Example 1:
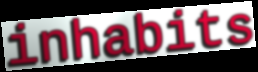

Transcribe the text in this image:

inhabits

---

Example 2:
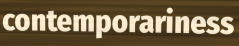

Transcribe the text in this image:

contemporariness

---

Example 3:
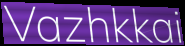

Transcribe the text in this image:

Vazhkkai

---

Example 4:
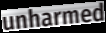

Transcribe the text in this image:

unharmed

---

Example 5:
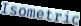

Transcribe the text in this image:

Isometric